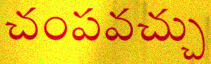
చంపవచ్చు